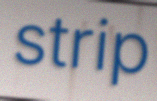
strip